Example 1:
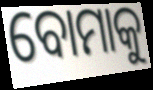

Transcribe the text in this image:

ବୋମାକୁ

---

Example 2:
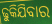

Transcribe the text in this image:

ଢୁକିଯିବାର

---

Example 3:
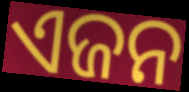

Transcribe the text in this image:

ଏଜନ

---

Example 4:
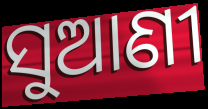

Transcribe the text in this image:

ସୁଆଣୀ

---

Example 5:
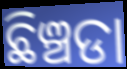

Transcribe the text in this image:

ଛିଞ୍ଚଡା